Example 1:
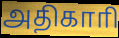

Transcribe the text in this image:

அதிகாரி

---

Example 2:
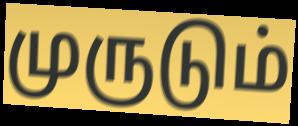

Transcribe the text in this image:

முருடும்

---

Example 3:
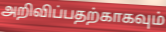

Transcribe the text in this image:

அறிவிப்பதற்காகவும்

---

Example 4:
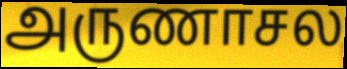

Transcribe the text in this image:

அருணாசல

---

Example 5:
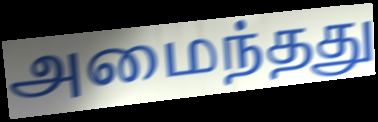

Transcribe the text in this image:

அமைந்தது